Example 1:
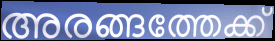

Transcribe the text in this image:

അരങ്ങത്തേക്ക്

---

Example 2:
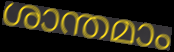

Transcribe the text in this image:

ശാന്തമാം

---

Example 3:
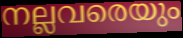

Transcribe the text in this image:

നല്ലവരെയും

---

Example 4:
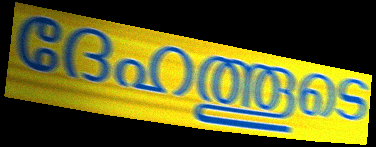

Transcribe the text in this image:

ദേഹത്തൂടെ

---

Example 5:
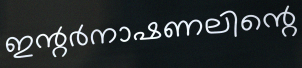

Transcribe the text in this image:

ഇന്റർനാഷണലിന്റെ